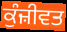
ਕੁੰਜ਼ੀਵਤ